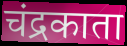
चंद्रकाता